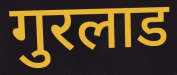
गुरलाड